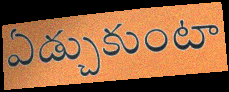
ఏడ్చుకుంటా